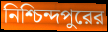
নিশ্চিন্দপুরের